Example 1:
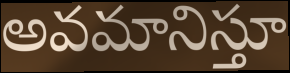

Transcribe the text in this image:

అవమానిస్తూ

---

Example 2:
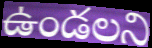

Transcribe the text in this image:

ఉండలని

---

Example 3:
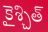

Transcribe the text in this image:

కైశ్చిత్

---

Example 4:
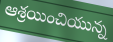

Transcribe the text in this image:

ఆశ్రయించియున్న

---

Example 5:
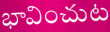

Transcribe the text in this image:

భావించుట